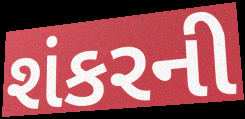
શંકરની